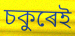
চকুৰেই